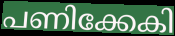
പണിക്കേകി